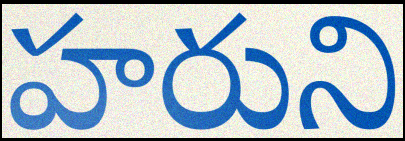
హరుని